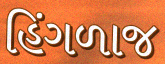
હિંગળાજ